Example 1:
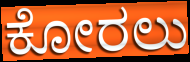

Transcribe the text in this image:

ಕೋರಲು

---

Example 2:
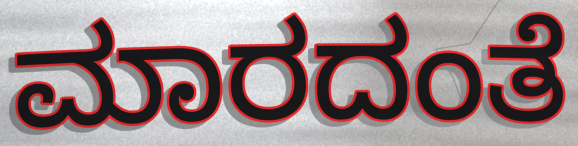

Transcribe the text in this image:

ಮಾರದಂತೆ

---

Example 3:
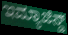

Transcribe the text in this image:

ಇಮ್ಯಾಜಿನ್ಡ್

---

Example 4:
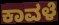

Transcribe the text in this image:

ಕಾವಳೆ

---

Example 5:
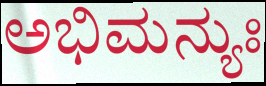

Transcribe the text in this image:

ಅಭಿಮನ್ಯುಃ